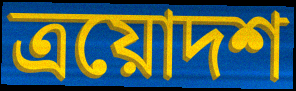
ত্ৰয়োদশ